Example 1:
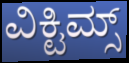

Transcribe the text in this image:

ವಿಕ್ಟಿಮ್ಸ್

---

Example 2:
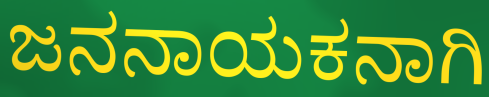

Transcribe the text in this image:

ಜನನಾಯಕನಾಗಿ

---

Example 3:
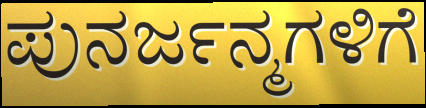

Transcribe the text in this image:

ಪುನರ್ಜನ್ಮಗಳಿಗೆ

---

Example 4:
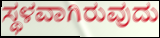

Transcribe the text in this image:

ಸ್ಥಳವಾಗಿರುವುದು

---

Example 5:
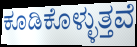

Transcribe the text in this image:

ಕೂಡಿಕೊಳ್ಳುತ್ತವೆ